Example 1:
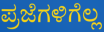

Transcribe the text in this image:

ಪ್ರಜೆಗಳಿಗೆಲ್ಲ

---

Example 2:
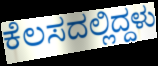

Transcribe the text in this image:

ಕೆಲಸದಲ್ಲಿದ್ದಳು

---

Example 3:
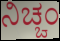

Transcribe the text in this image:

ನಿಚ್ಚಂ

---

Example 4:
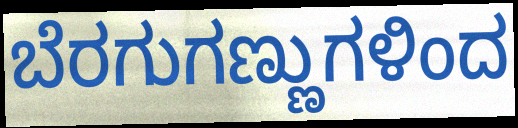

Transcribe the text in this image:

ಬೆರಗುಗಣ್ಣುಗಳಿಂದ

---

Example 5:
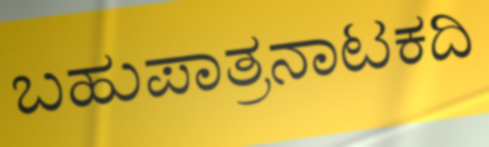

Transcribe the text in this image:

ಬಹುಪಾತ್ರನಾಟಕದಿ